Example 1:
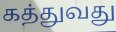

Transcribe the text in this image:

கத்துவது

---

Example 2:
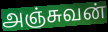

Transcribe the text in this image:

அஞ்சுவன்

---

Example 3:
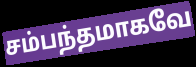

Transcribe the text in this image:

சம்பந்தமாகவே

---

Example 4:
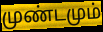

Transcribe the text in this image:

முண்டமும்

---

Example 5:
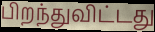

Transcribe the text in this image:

பிறந்துவிட்டது